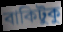
বাকিটুকু